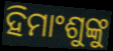
ହିମାଂଶୁଙ୍କୁ